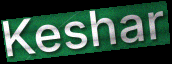
Keshar